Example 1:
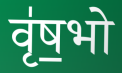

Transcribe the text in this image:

वृ॑ष॒भो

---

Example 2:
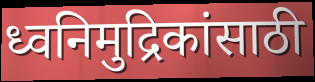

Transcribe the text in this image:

ध्वनिमुद्रिकांसाठी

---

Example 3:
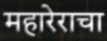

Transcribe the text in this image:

महारेराचा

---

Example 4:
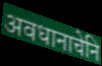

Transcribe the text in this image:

अवधानाचेनि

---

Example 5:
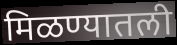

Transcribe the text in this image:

मिळण्यातली